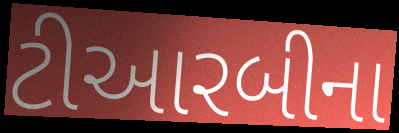
ટીઆરબીના